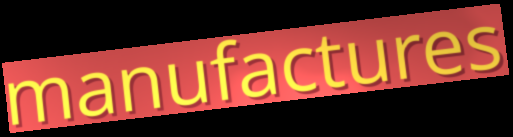
manufactures